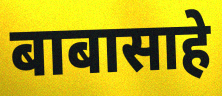
बाबासाहे